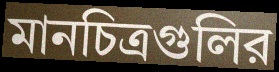
মানচিত্রগুলির